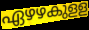
ഏഴഴകുളള